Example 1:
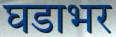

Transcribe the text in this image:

घडाभर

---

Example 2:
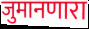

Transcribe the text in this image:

जुमानणारा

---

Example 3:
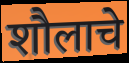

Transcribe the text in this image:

शौलाचे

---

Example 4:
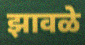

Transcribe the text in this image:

झावळे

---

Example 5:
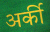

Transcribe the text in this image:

अर्की